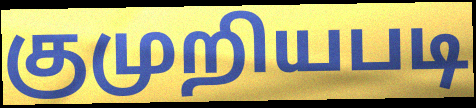
குமுறியபடி